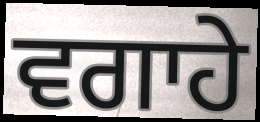
ਵਗਾਹੇ